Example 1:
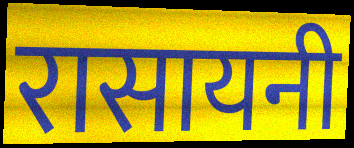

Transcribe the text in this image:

रासायनी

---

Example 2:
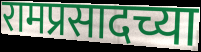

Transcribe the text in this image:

रामप्रसादच्या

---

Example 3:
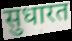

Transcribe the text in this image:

सुधारत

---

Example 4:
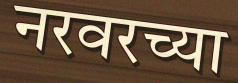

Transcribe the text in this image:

नरवरच्या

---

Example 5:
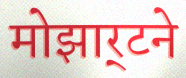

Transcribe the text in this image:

मोझार्टने